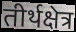
तीर्थक्षेत्र